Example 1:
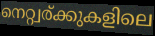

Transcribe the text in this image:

നെറ്റ്വര്ക്കുകളിലെ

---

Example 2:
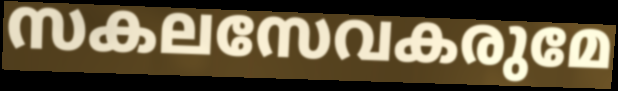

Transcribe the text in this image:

സകലസേവകരുമേ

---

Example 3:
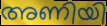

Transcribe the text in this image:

അണിയി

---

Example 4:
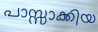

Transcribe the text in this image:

പാസ്സാക്കിയ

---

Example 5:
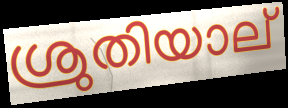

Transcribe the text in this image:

ശ്രുതിയാല്